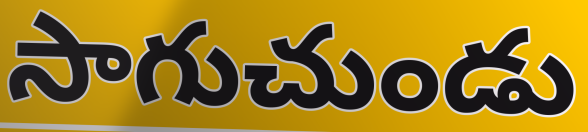
సాగుచుండు